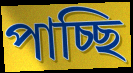
পাচ্ছি